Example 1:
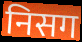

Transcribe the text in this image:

निसग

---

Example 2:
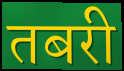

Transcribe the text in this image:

तबरी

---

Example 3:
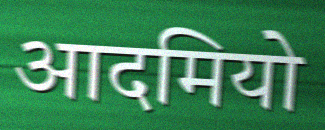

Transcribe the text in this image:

आदमियो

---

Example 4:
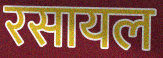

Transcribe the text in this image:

रसायल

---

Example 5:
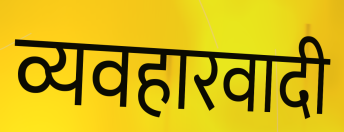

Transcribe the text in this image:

व्यवहारवादी